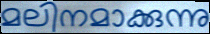
മലിനമാക്കുന്നു